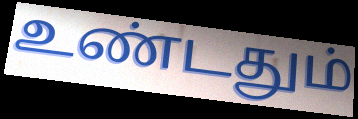
உண்டதும்